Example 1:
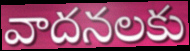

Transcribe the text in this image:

వాదనలకు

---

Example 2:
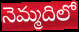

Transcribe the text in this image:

నెమ్మదిలో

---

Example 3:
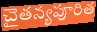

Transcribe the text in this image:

చైతన్యపూరిత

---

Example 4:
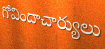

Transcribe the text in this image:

గోవిందాచార్యులు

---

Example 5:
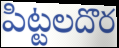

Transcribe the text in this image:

పిట్టలదొర